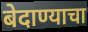
बेदाण्याचा